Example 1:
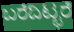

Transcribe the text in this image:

ಬರೆದಿಟ್ಟರೆ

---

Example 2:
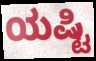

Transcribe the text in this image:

ಯಷ್ಟಿ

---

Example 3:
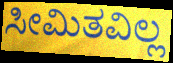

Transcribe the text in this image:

ಸೀಮಿತವಿಲ್ಲ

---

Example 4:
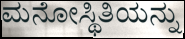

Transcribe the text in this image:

ಮನೋಸ್ಥಿತಿಯನ್ನು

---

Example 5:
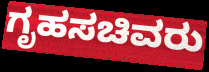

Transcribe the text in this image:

ಗೃಹಸಚಿವರು